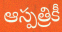
ఆస్పత్రికీ